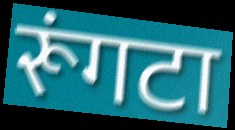
रूंगटा